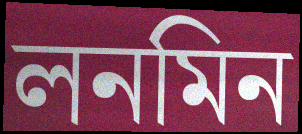
লনমিন